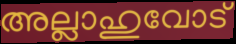
അല്ലാഹുവോട്